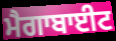
ਮੈਗਾਬਾਈਟ